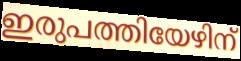
ഇരുപത്തിയേഴിന്